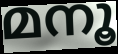
മനൂ